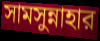
সামসুন্নাহার